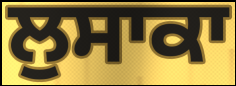
ਲੁਸਾਕਾ